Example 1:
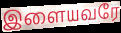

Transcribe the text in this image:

இளையவரே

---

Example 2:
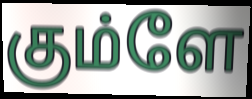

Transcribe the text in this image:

கும்ளே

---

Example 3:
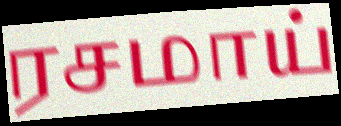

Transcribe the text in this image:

ரசமாய்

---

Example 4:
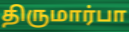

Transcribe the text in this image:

திருமார்பா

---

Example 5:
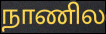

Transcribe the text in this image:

நாணில